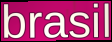
brasil